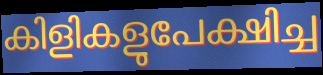
കിളികളുപേക്ഷിച്ച